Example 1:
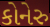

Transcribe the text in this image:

કોનેરુ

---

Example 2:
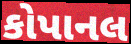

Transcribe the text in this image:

કોપાનલ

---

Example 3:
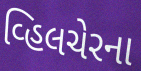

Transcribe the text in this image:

વ્હિલચેરના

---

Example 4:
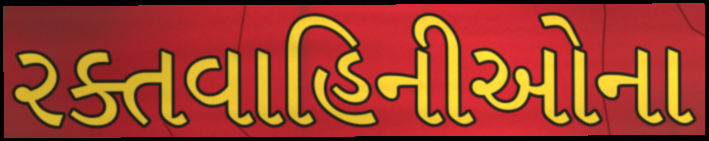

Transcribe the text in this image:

રક્તવાહિનીઓના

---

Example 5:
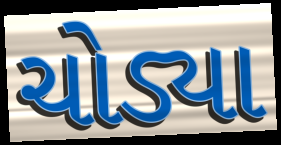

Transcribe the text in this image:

ચોડ્યા